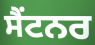
ਸੈਂਟਨਰ